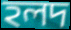
হলদ